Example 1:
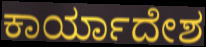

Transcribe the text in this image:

ಕಾರ್ಯಾದೇಶ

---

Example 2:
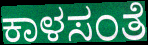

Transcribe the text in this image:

ಕಾಳಸಂತೆ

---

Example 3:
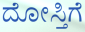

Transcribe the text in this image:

ದೋಸ್ತಿಗೆ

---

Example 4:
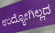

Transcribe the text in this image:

ಉದ್ಯೋಗಿಲ್ಲದ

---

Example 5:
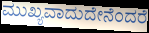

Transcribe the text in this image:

ಮುಖ್ಯವಾದುದೇನೆಂದರೆ